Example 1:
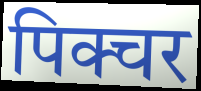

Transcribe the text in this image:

पिक्चर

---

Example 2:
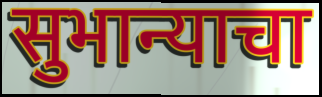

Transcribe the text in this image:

सुभान्याचा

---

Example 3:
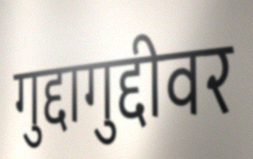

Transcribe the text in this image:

गुद्दागुद्दीवर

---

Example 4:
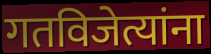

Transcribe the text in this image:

गतविजेत्यांना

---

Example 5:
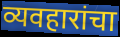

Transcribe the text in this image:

व्यवहारांचा